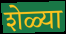
शेळ्या